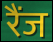
रैंज